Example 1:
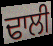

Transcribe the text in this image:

ਢਾਲੀ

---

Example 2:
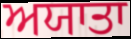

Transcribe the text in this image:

ਅਯਾਤਾ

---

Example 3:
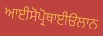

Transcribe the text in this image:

ਆਈਸੋਪ੍ਰੋਥਾਈੳਲਾਨ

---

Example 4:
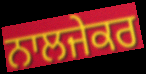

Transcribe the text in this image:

ਨਾਲਜੇਕਰ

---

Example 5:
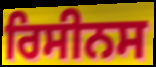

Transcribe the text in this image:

ਰਿਸੀਨਸ